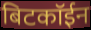
बिटकॉईन